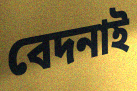
বেদনাই